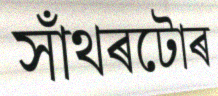
সাঁথৰটোৰ